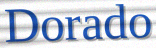
Dorado